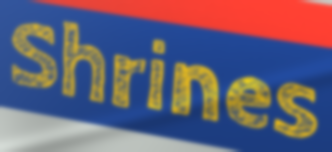
Shrines